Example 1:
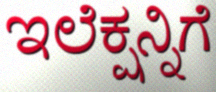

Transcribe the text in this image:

ಇಲೆಕ್ಷನ್ನಿಗೆ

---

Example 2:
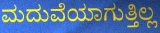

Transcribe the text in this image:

ಮದುವೆಯಾಗುತ್ತಿಲ್ಲ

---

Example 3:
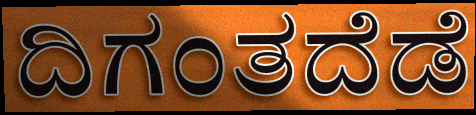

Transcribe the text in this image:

ದಿಗಂತದೆಡೆ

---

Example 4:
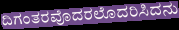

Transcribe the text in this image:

ದಿಗಂತರವೊದರಲೊದರಿಸಿದನು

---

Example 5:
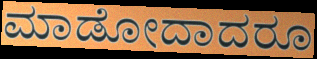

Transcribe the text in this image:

ಮಾಡೋದಾದರೂ